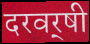
दरवर्षी